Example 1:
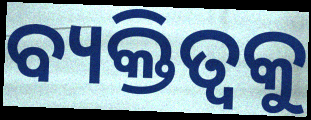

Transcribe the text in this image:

ବ୍ୟକ୍ତିତ୍ୱକୁ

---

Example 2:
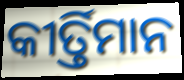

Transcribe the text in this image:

କୀର୍ତ୍ତିମାନ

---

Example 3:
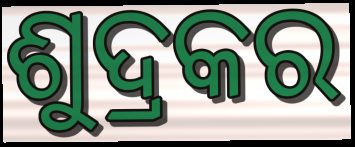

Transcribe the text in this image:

ଶୁଦ୍ରକର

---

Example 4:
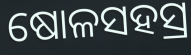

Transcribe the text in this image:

ଷୋଳସହସ୍ର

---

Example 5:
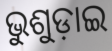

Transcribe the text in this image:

ଭୁଶୁଡ଼ାଇ